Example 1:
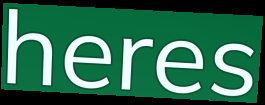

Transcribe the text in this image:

heres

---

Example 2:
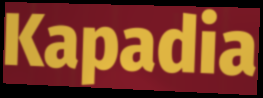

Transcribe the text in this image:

Kapadia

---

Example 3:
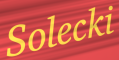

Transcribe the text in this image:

Solecki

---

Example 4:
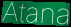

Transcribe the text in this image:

Atana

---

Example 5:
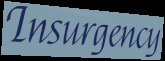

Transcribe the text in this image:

Insurgency